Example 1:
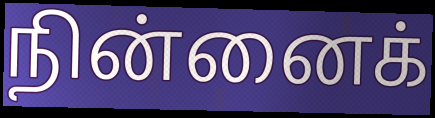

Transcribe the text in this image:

நின்னைக்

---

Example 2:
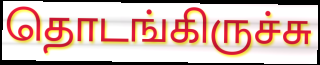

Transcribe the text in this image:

தொடங்கிருச்சு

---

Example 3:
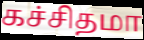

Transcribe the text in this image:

கச்சிதமா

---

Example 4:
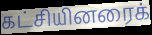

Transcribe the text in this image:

கட்சியினரைக்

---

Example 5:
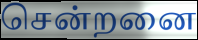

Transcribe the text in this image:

சென்றனை